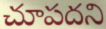
చూపదని